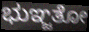
ಭುಞ್ಜತೋ